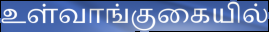
உள்வாங்குகையில்